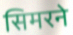
सिमरने